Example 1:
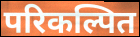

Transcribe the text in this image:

परिकल्पित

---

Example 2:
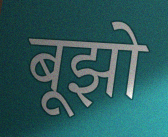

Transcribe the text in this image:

बूझो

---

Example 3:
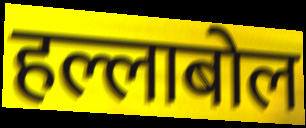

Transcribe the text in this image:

हल्लाबोल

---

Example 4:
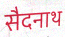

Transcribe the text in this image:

सैदनाथ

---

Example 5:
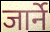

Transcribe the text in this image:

जार्ने